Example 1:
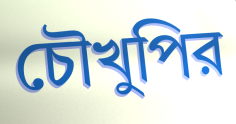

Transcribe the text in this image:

চৌখুপির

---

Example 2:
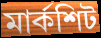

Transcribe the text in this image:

মার্কশিট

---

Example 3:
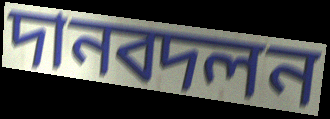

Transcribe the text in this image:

দানবদলন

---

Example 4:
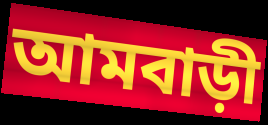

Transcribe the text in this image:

আমবাড়ী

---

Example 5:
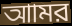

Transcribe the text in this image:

আামর